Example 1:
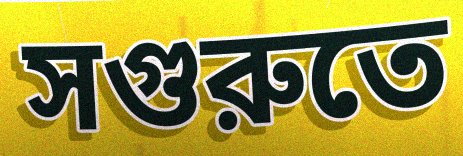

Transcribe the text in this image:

সগুরুতে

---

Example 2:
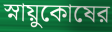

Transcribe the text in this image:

স্নায়ুকোষের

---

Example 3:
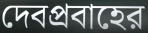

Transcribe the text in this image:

দেবপ্রবাহের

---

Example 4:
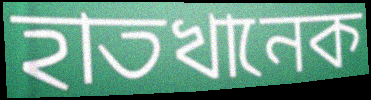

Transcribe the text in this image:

হাতখানেক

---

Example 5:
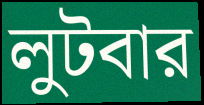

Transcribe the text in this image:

লুটবার